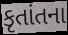
કૃતાંતના